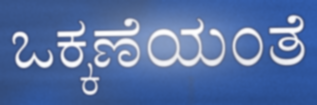
ಒಕ್ಕಣೆಯಂತೆ